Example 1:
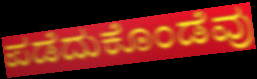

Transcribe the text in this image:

ಪಡೆದುಕೊಂಡೆವು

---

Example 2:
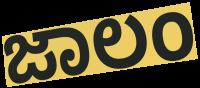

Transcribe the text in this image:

ಜಾಲಂ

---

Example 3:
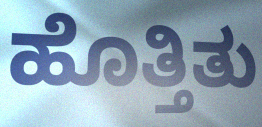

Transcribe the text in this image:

ಹೊತ್ತಿತು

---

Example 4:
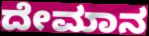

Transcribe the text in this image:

ದೇಮಾನ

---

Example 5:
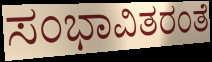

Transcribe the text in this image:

ಸಂಭಾವಿತರಂತೆ